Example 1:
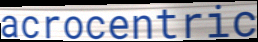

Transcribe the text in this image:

acrocentric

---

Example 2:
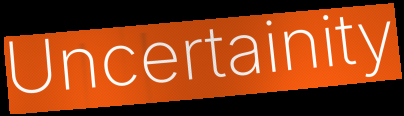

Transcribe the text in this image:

Uncertainity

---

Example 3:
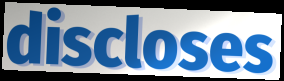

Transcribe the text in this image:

discloses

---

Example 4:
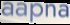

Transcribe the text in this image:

aapna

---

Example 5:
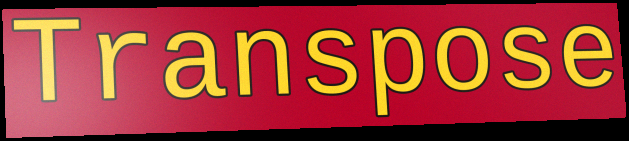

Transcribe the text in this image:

Transpose